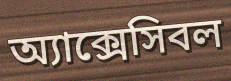
অ্যাক্সেসিবল